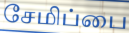
சேமிப்பை